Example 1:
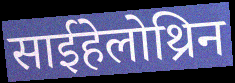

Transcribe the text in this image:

साईहेलोथ्रिन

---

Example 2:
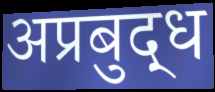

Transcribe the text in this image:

अप्रबुद्ध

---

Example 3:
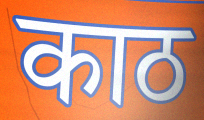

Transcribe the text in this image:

काठ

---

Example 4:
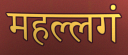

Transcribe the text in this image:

महल्लगं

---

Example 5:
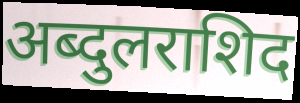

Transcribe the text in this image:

अब्दुलराशिद